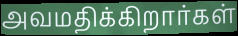
அவமதிக்கிறார்கள்